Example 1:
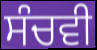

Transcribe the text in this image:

ਸੰਚਵੀ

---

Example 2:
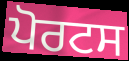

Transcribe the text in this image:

ਪੋਰਟਸ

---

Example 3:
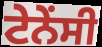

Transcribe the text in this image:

ਟੇਨੇਂਸੀ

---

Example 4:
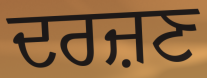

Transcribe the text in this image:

ਦਰਜ਼ਣ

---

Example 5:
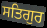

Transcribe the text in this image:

ਸਤਿਗੁਰ